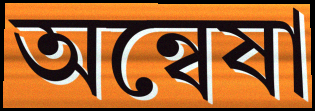
অন্বেষা